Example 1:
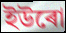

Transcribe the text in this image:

ইউৰো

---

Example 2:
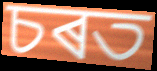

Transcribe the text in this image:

চৰত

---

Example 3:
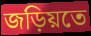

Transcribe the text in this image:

জড়িয়তে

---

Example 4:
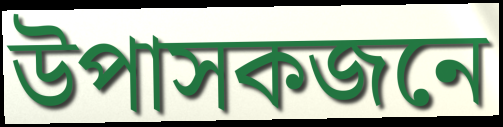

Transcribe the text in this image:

উপাসকজনে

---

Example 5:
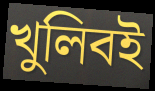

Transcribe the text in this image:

খুলিবই